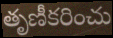
తృణీకరించు